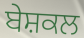
ਬੇਸ਼ਕਲ